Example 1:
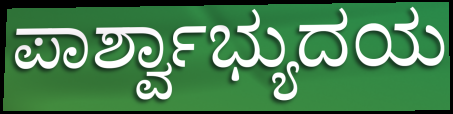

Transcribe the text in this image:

ಪಾರ್ಶ್ವಾಭ್ಯುದಯ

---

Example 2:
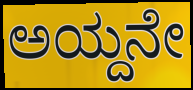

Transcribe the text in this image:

ಅಯ್ದನೇ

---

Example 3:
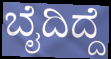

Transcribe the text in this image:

ಬೈದಿದ್ದೆ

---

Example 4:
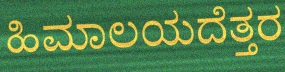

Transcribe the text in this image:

ಹಿಮಾಲಯದೆತ್ತರ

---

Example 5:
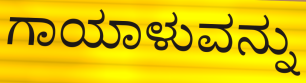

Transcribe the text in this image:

ಗಾಯಾಳುವನ್ನು